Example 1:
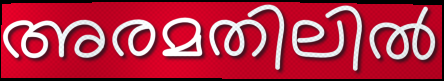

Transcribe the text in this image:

അരമതിലിൽ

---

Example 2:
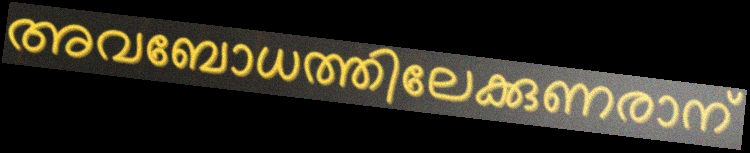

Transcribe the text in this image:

അവബോധത്തിലേക്കുണരാന്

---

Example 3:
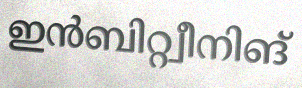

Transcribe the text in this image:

ഇൻബിറ്റ്വീനിങ്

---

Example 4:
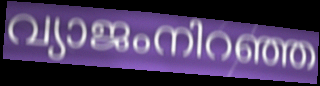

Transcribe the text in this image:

വ്യാജംനിറഞ്ഞ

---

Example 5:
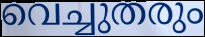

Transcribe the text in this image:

വെച്ചുതരും